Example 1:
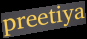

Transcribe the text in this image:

preetiya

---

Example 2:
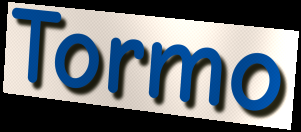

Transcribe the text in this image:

Tormo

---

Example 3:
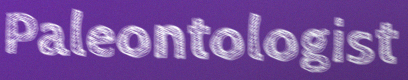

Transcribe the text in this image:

Paleontologist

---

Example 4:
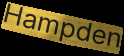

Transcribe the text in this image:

Hampden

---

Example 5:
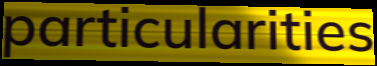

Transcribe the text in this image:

particularities